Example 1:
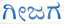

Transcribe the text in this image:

ಗೀಜಗ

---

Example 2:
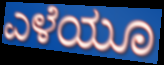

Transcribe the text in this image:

ಎಳೆಯೂ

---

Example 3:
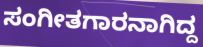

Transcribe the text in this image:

ಸಂಗೀತಗಾರನಾಗಿದ್ದ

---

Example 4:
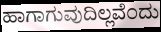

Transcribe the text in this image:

ಹಾಗಾಗುವುದಿಲ್ಲವೆಂದು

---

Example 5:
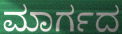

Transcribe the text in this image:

ಮಾರ್ಗದ